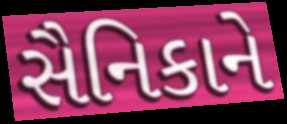
સૈનિકાને